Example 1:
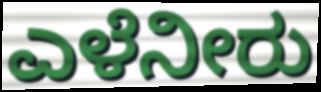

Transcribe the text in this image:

ಎಳೆನೀರು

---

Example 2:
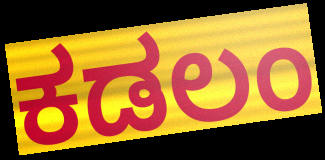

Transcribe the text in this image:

ಕಡಲಂ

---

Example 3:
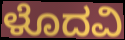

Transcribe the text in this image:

ಳೊದವಿ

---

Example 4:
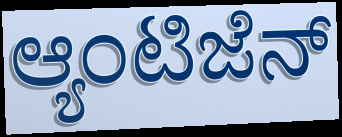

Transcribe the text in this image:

ಆ್ಯಂಟಿಜೆನ್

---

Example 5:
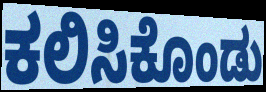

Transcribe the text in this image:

ಕಲಿಸಿಕೊಂಡು